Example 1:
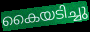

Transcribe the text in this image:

കൈയടിച്ചു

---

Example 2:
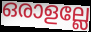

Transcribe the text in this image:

ഒരാളല്ലേ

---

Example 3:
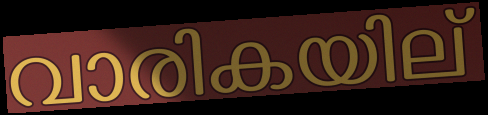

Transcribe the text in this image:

വാരികയില്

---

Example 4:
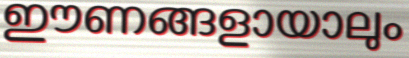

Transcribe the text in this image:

ഈണങ്ങളായാലും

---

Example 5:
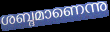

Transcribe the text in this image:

ശബ്ദമാണെന്നു